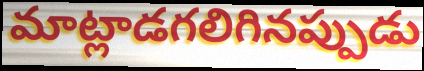
మాట్లాడగలిగినప్పుడు